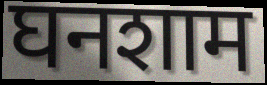
घनशाम